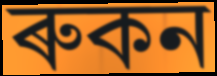
ৰুকন